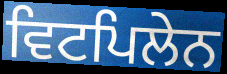
ਵਿਟਪਿਲੇਨ